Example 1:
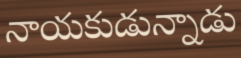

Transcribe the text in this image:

నాయకుడున్నాడు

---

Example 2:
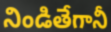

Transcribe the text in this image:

నిండితేగానీ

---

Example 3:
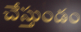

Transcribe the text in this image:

చేస్తుండం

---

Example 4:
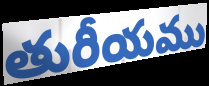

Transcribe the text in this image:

తురీయము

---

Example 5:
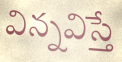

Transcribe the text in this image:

విన్నవిస్తే